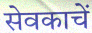
सेवकाचें